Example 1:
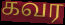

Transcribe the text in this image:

கவர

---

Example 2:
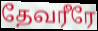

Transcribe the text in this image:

தேவரீரே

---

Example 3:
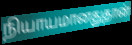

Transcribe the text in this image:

நியாயமானதுதான்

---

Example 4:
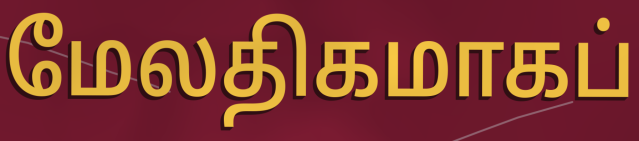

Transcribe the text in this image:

மேலதிகமாகப்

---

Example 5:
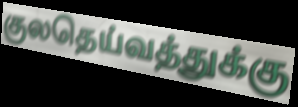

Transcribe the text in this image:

குலதெய்வத்துக்கு